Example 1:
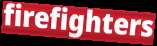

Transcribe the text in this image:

firefighters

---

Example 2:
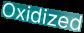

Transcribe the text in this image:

Oxidized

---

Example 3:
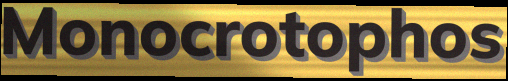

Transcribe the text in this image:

Monocrotophos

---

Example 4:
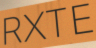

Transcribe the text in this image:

RXTE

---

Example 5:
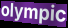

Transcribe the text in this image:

olympic